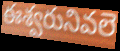
ఈశ్వరునివలె